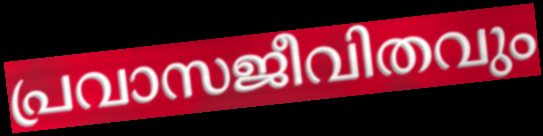
പ്രവാസജീവിതവും